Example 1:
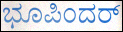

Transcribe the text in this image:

ಭೂಪಿಂದರ್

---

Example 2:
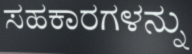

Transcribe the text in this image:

ಸಹಕಾರಗಳನ್ನು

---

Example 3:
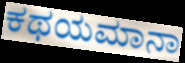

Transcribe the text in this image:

ಕಥಯಮಾನಾ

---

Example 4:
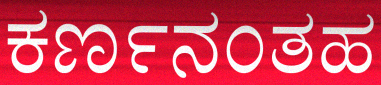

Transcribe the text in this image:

ಕರ್ಣನಂತಹ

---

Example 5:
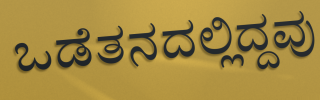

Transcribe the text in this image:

ಒಡೆತನದಲ್ಲಿದ್ದವು